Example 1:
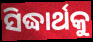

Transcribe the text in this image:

ସିଦ୍ଧାର୍ଥକୁ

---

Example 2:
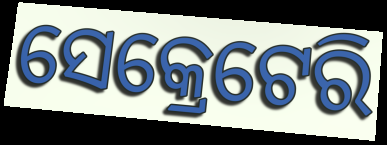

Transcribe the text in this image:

ସେକ୍ରେଟେରି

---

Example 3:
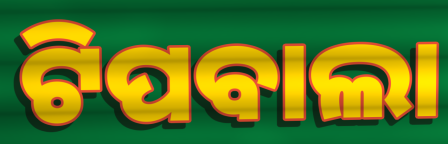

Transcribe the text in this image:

ଟିପବାଲା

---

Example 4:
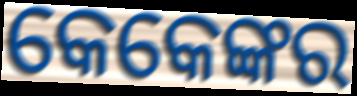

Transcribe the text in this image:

କେକେଙ୍କର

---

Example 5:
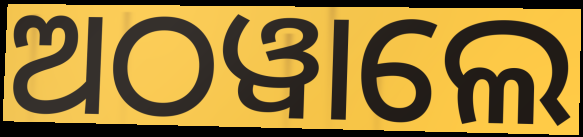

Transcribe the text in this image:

ଅଠୱାଲେ